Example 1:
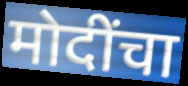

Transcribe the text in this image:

मोदींचा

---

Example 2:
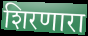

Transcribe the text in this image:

शिरणारा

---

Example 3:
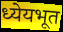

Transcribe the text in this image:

ध्येयभूत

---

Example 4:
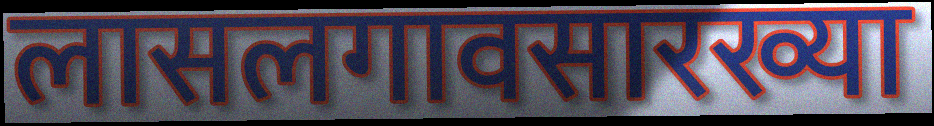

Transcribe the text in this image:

लासलगावसारख्या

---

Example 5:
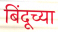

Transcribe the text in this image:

बिंदूच्या